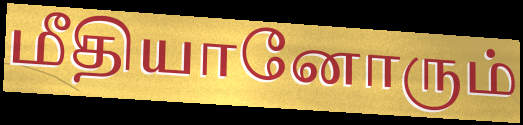
மீதியானோரும்